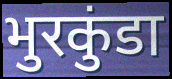
भुरकुंडा